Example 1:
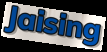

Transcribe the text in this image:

Jaising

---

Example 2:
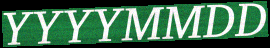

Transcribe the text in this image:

YYYYMMDD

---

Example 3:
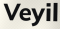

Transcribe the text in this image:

Veyil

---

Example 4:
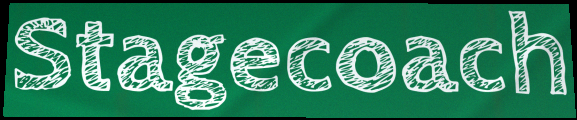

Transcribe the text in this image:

Stagecoach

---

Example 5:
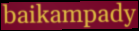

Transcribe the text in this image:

baikampady